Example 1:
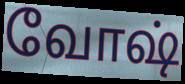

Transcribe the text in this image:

வோஷ்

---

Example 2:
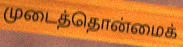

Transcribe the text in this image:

முடைத்தொன்மைக்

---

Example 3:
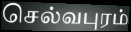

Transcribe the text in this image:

செல்வபுரம்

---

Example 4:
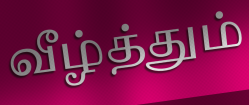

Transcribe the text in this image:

வீழ்த்தும்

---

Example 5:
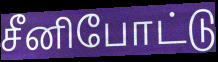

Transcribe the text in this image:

சீனிபோட்டு